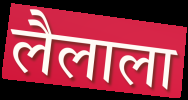
लैलाला